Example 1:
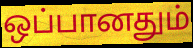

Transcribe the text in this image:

ஒப்பானதும்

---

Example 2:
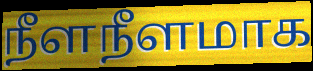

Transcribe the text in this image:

நீளநீளமாக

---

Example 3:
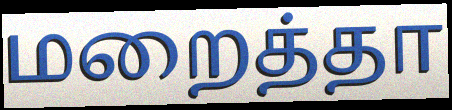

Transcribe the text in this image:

மறைத்தா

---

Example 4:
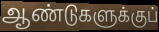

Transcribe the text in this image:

ஆண்டுகளுக்குப்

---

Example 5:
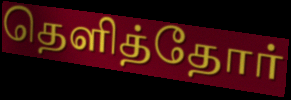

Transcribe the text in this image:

தெளித்தோர்